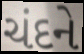
ચંદને